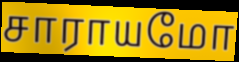
சாராயமோ